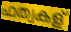
ഫത്വകള്